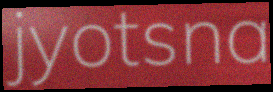
jyotsna